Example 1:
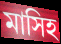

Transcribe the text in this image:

মাসিহ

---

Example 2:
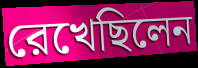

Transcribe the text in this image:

রেখেছিলেন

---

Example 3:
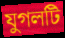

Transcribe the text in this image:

যুগলটি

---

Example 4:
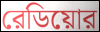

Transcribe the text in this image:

রেডিয়োর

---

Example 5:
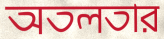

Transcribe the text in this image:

অতলতার